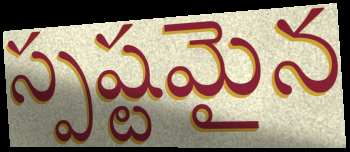
స్పష్టమైన